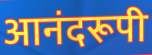
आनंदरूपी